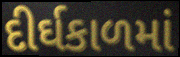
દીર્ઘકાળમાં